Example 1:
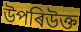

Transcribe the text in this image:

উপৰিউক্ত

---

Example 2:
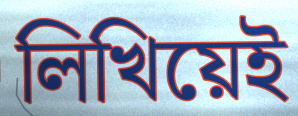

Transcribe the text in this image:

লিখিয়েই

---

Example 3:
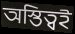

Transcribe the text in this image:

অস্তিত্বই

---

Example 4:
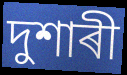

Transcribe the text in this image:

দুশাৰী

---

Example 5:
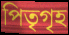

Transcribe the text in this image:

পিতৃগৃহ